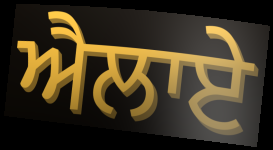
ਐਲਾਏ